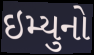
ઇમ્યુનો